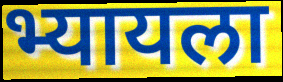
भ्यायला